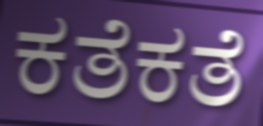
ಕತೆಕತೆ